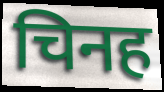
चिनह